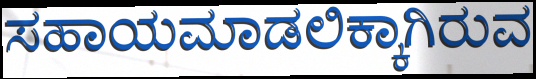
ಸಹಾಯಮಾಡಲಿಕ್ಕಾಗಿರುವ